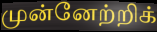
முன்னேற்றிக்